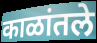
काळांतले